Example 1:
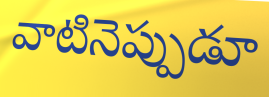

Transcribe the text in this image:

వాటినెప్పుడూ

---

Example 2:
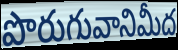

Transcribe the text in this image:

పొరుగువానిమీద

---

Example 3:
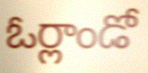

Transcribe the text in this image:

ఓర్లాండో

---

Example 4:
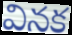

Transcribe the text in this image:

వినక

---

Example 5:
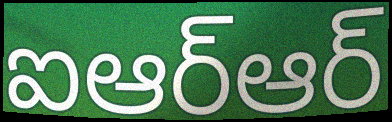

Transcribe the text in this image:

ఐఆర్ఆర్